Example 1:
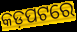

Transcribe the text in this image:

କଡ଼ପଟରେ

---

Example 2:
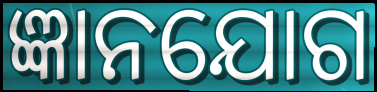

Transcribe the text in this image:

ଜ୍ଞାନଯୋଗ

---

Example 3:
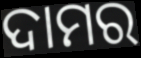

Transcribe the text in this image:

ଦାମର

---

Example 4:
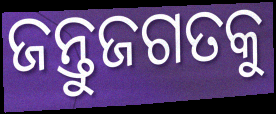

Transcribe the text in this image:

ଜନ୍ତୁଜଗତକୁ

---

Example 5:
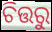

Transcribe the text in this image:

ଚିତ୍ତରୁ